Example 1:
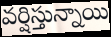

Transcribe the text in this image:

వర్షిస్తున్నాయి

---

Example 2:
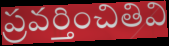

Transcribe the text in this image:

ప్రవర్తించితివి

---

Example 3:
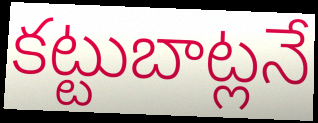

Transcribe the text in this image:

కట్టుబాట్లనే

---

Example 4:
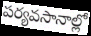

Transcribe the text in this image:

పర్యవసానాల్లో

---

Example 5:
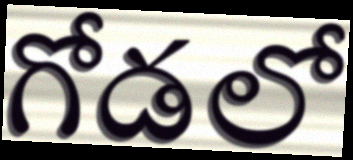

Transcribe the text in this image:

గోడలో